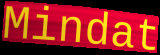
Mindat